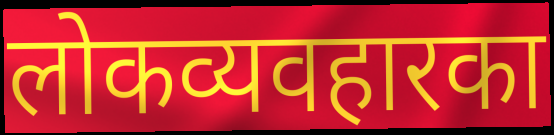
लोकव्यवहारका